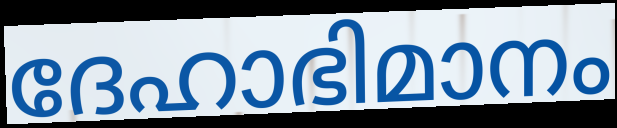
ദേഹാഭിമാനം